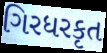
ગિરધરકૃત